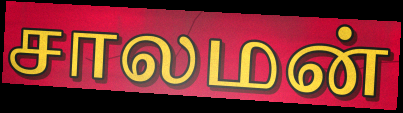
சாலமன்